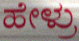
ಹೇಳ್ರು